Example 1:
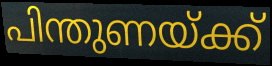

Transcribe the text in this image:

പിന്തുണയ്ക്ക്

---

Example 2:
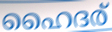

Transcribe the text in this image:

ഹൈദര്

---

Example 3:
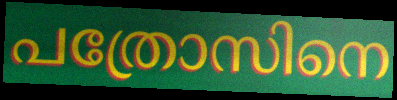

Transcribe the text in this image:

പത്രോസിനെ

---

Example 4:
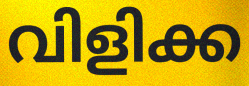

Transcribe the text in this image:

വിളിക്ക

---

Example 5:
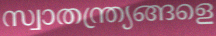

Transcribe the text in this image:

സ്വാതന്ത്ര്യങ്ങളെ